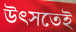
উৎসতেই